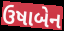
ઉષાબેન